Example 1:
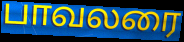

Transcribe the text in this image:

பாவலரை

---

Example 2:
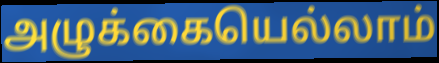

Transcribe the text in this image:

அழுக்கையெல்லாம்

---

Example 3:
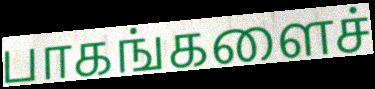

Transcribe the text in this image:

பாகங்களைச்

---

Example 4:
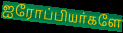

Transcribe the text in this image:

ஐரோப்பியர்களே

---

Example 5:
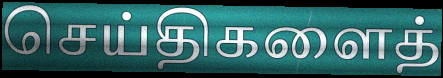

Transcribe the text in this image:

செய்திகளைத்